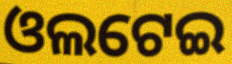
ଓଲଟେଇ